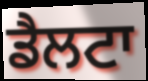
ਡੈਲਟਾ